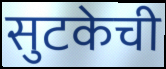
सुटकेची